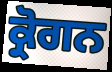
ਕ੍ਰੋਗਨ